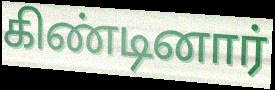
கிண்டினார்